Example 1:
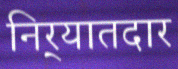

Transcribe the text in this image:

निर्यातदार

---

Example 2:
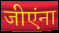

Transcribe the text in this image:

जीएंना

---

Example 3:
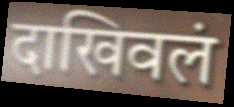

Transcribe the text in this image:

दाखिवलं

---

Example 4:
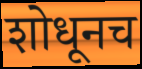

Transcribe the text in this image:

शोधूनच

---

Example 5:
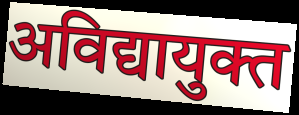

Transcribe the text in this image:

अविद्यायुक्त